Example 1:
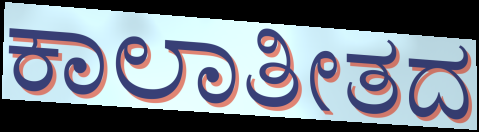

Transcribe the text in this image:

ಕಾಲಾತೀತದ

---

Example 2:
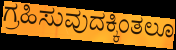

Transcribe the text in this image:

ಗ್ರಹಿಸುವುದಕ್ಕಿಂತಲೂ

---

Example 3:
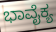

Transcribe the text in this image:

ಭಾವೈಕ್ಯ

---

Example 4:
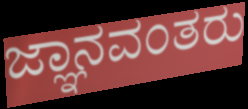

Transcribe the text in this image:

ಜ್ಞಾನವಂತರು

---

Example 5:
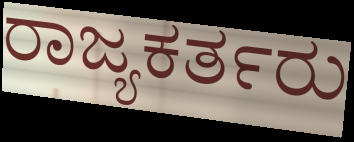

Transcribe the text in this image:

ರಾಜ್ಯಕರ್ತರು